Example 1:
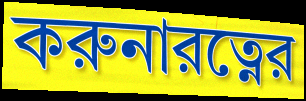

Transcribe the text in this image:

করুনারত্নের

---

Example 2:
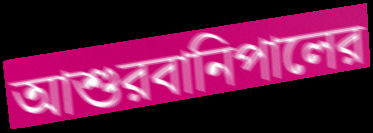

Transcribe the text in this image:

আশুরবানিপালের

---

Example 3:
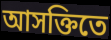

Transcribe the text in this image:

আসক্তিতে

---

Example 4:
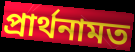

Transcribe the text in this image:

প্রার্থনামত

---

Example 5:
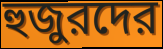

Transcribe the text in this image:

হুজুরদের